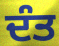
ਦੰਤ